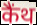
कैंथ